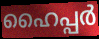
ഹൈപ്പർ